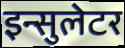
इन्सुलेटर